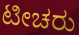
ಟೀಚರು